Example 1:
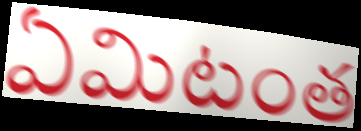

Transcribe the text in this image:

ఏమిటంత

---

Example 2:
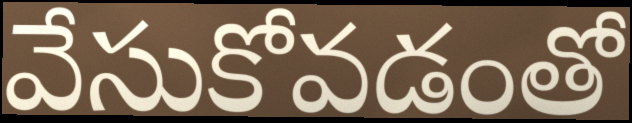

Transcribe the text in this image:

వేసుకోవడంతో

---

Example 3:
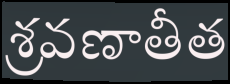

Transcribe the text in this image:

శ్రవణాతీత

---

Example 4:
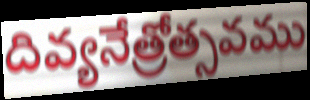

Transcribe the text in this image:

దివ్యనేత్రోత్సవము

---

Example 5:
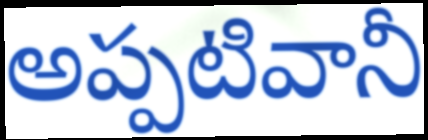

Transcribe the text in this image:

అప్పటివానీ